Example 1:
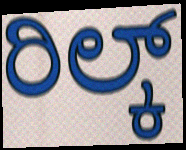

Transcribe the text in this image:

ರಿಲ್ಕ್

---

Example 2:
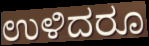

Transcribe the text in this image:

ಉಳಿದರೂ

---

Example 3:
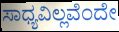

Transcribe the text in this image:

ಸಾಧ್ಯವಿಲ್ಲವೆಂದೇ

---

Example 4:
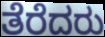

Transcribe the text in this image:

ತೆರೆದರು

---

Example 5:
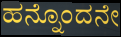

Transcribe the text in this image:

ಹನ್ನೊಂದನೇ